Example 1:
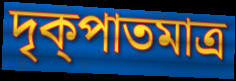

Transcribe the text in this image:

দৃক্পাতমাত্র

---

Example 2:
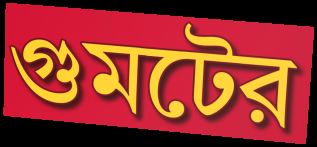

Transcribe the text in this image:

গুমটের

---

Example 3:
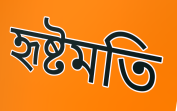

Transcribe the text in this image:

হৃষ্টমতি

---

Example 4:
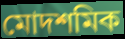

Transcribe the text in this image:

মোদশমিক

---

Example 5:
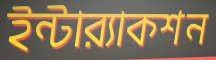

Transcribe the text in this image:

ইন্টার‍্যাকশন